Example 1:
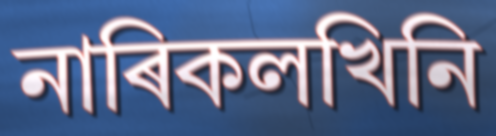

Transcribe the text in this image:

নাৰিকলখিনি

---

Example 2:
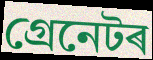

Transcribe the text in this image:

গ্ৰেনেটৰ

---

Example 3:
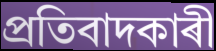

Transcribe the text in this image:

প্ৰতিবাদকাৰী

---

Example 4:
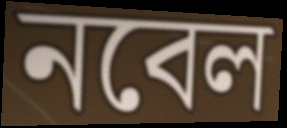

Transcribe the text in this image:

নবেল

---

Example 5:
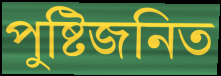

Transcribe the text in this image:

পুষ্টিজনিত